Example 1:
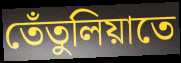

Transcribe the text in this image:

তেঁতুলিয়াতে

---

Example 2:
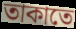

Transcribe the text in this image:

তাকাতে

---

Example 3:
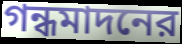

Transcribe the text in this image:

গন্ধমাদনের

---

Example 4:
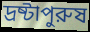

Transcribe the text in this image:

দ্রষ্টাপুরুষ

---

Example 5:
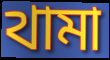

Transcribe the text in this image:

থামা